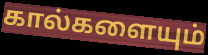
கால்களையும்